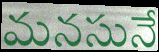
మనసునే